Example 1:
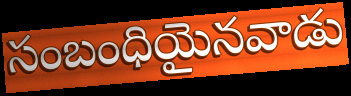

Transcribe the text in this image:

సంబంధియైనవాడు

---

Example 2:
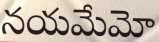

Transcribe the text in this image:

నయమేమో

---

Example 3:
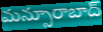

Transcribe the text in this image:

మన్సూరాబాద్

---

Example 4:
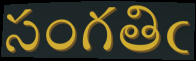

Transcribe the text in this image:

సంగతిఁ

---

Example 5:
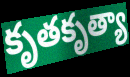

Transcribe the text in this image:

కృతకృత్యా